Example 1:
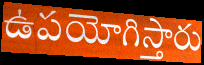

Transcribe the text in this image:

ఉపయోగిస్తారు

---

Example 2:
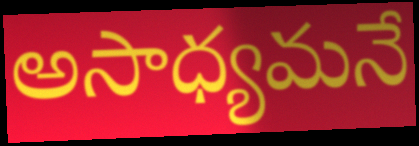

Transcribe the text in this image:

అసాధ్యమనే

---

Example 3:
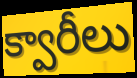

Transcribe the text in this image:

క్వారీలు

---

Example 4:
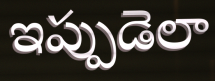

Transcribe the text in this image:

ఇప్పుడెలా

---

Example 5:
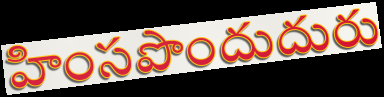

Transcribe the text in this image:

హింసపొందుదురు